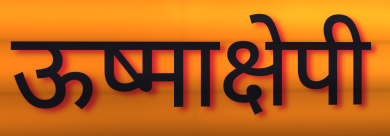
ऊष्माक्षेपी